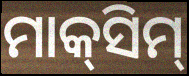
ମାକ୍‍ସିମ୍